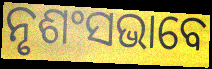
ନୃଶଂସଭାବେ